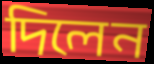
দিলেন